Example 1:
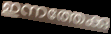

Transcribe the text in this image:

ഇന്നത്തേക്കു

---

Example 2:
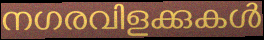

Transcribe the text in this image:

നഗരവിളക്കുകൾ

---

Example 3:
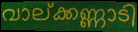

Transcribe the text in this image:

വാല്ക്കണ്ണാടി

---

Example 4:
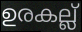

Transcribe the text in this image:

ഉരകല്ല്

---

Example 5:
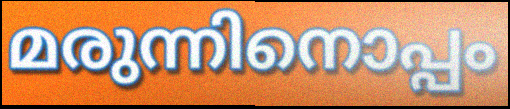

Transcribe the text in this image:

മരുന്നിനൊപ്പം